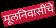
मूलनिवासींचे